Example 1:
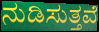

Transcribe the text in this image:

ನುಡಿಸುತ್ತವೆ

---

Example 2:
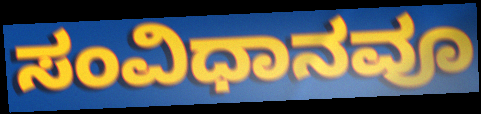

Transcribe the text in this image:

ಸಂವಿಧಾನವೂ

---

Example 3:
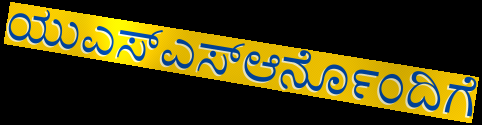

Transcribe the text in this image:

ಯುಎಸ್ಎಸ್ಆರ್ನೊಂದಿಗೆ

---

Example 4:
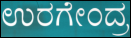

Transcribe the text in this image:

ಉರಗೇಂದ್ರ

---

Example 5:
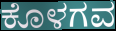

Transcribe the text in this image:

ಕೊಳಗವ